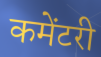
कमेंटरी